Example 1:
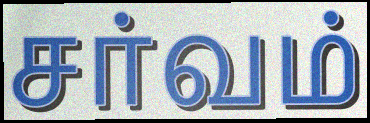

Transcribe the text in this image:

சர்வம்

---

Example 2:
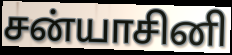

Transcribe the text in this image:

சன்யாசினி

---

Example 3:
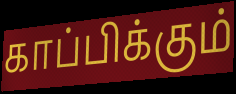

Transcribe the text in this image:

காப்பிக்கும்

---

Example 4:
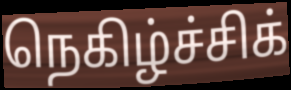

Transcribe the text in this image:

நெகிழ்ச்சிக்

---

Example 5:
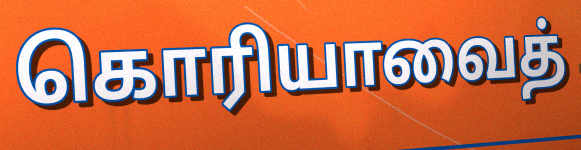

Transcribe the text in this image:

கொரியாவைத்